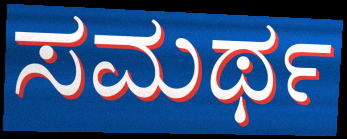
ಸಮರ್ಥ